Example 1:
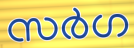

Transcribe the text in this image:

സർഗ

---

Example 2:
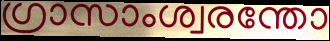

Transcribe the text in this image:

ഗ്രാസാംശ്വരന്തോ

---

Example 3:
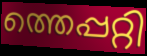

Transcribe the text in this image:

ത്തെപ്പറ്റി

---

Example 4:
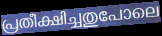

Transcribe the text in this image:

പ്രതീക്ഷിച്ചതുപോലെ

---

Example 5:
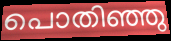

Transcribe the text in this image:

പൊതിഞ്ഞു